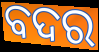
ବଦର